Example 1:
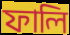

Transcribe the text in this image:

ফালি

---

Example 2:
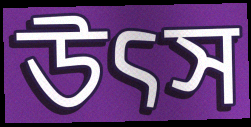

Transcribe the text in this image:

উৎস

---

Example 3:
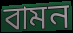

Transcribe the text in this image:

বামন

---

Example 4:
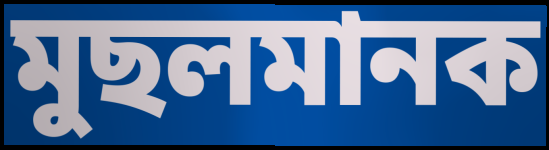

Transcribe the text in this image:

মুছলমানক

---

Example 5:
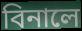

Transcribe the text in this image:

বিনালে